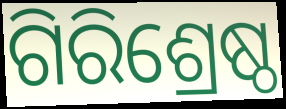
ଗିରିଶ୍ରେଷ୍ଠ